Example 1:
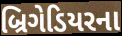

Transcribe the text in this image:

બ્રિગેડિયરના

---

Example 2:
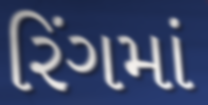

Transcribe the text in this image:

રિંગમાં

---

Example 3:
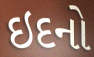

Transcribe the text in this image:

ઇદનો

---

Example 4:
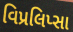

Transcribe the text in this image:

વિપ્રલિપ્સા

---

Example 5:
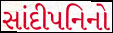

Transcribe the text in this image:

સાંદીપનિનો